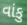
વાંકુ